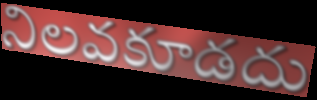
నిలవకూడదు